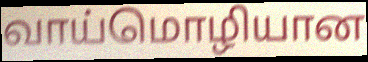
வாய்மொழியான